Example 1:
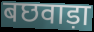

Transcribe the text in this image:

बछवाड़ा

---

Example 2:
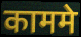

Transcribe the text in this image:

काममे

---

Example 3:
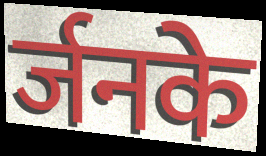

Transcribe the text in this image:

र्जनके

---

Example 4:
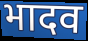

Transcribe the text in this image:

भादव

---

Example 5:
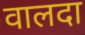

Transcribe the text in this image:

वालदा